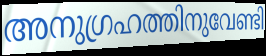
അനുഗ്രഹത്തിനുവേണ്ടി